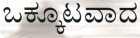
ಒಕ್ಕೂಟವಾದ